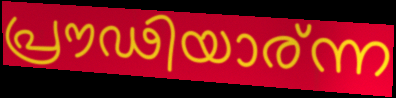
പ്രൗഢിയാര്ന്ന